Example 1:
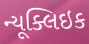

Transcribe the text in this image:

ન્યૂક્લિઇક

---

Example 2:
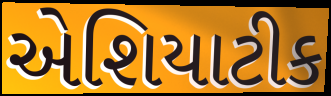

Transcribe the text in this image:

એશિયાટીક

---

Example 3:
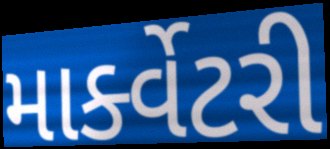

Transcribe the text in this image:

માર્ક્વેટરી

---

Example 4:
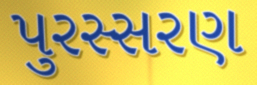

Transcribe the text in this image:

પુરસ્સરણ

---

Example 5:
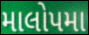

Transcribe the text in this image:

માલોપમા